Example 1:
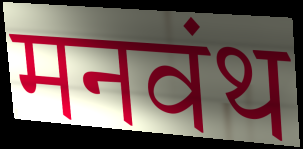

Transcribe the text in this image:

मनवंथ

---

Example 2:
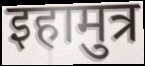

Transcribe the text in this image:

इहामुत्र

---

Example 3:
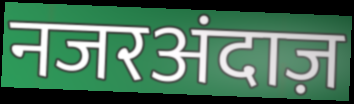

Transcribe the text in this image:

नजरअंदाज़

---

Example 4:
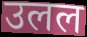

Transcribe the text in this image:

उलल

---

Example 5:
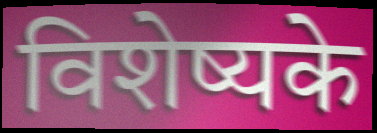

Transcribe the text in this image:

विशेष्यके